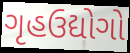
ગૃહઉદ્યોગો